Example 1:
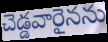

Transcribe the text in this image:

చెడ్డవారైనను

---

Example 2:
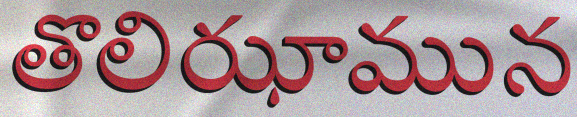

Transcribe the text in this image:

తొలిఝామున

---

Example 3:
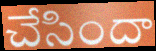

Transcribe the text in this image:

చేసిందా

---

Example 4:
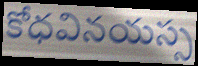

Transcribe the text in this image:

కోధవినయస్స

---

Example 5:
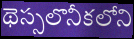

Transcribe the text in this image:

థెస్సలొనీకలోని